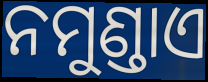
ନମୁଣ୍ଡାଏ